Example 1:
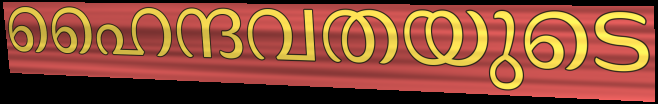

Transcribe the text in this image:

ഹൈന്ദവതയുടെ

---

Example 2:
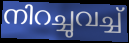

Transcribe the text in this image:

നിറച്ചുവച്ച്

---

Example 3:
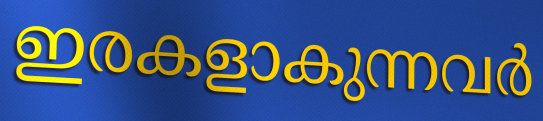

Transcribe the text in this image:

ഇരകളാകുന്നവർ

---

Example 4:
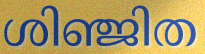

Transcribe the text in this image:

ശിഞ്ജിത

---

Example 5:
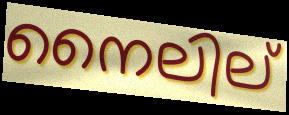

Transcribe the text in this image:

നൈലില്